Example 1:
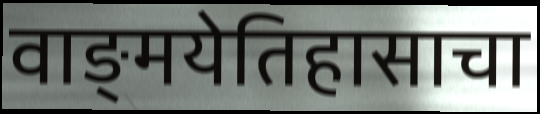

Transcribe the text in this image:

वाङ्मयेतिहासाचा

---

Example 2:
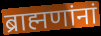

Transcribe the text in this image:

ब्राह्मणांनां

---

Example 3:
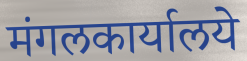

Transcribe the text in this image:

मंगलकार्यालये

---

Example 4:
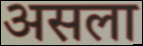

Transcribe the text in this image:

असला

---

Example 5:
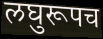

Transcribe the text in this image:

लघुरूपच